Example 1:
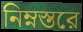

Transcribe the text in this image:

নিম্নস্তরে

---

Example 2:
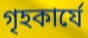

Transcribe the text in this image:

গৃহকার্যে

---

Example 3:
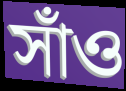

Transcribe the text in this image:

সাঁও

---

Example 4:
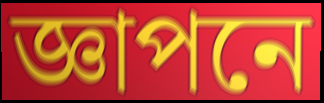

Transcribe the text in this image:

জ্ঞাপনে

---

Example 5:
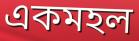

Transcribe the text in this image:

একমহল